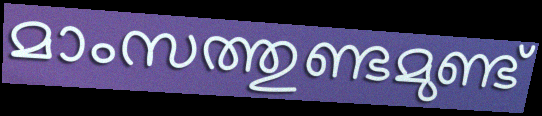
മാംസത്തുണ്ടമുണ്ട്